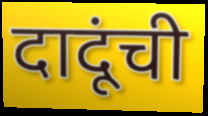
दादूंची